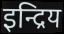
इन्द्रिय